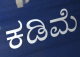
ಕಡಿಮೆ